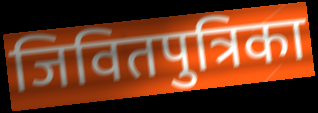
जिवितपुत्रिका